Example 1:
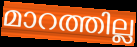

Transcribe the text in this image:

മാറത്തില്ല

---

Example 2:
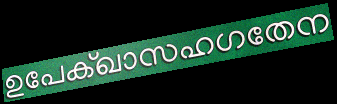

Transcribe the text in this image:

ഉപേക്ഖാസഹഗതേന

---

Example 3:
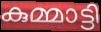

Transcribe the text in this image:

കുമ്മാട്ടി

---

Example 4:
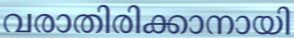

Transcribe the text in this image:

വരാതിരിക്കാനായി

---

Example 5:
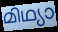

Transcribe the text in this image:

മിഥ്യാ